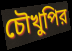
চৌখুপির